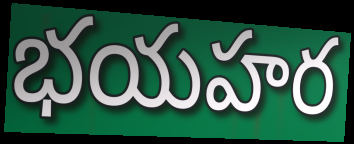
భయహర